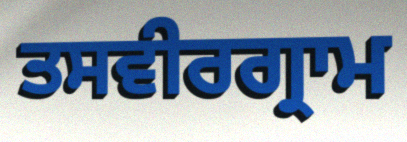
ਤਸਵੀਰਗ੍ਰਾਮ